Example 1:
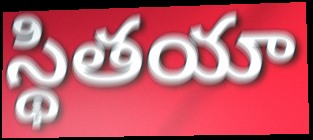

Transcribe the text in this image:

స్థితయా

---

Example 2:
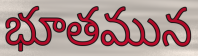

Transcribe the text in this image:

భూతమున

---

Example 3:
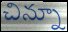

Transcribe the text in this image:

చిన్నూ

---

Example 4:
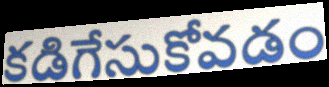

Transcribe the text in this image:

కడిగేసుకోవడం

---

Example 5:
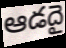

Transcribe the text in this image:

ఆడదై